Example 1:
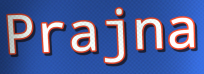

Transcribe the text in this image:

Prajna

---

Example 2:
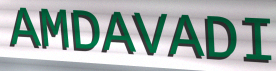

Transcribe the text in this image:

AMDAVADI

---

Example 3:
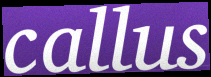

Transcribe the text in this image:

callus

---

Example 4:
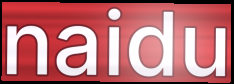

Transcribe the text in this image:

naidu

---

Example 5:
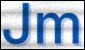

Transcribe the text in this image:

Jm